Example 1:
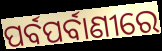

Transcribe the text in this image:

ପର୍ବପର୍ବାଣୀରେ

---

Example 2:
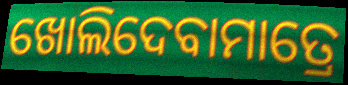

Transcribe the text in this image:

ଖୋଲିଦେବାମାତ୍ରେ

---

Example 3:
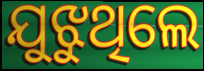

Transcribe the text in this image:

ଯୁଝୁଥିଲେ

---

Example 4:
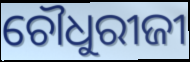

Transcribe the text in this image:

ଚୌଧୁରୀଜୀ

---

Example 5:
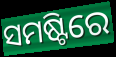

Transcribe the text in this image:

ସମଷ୍ଟିରେ